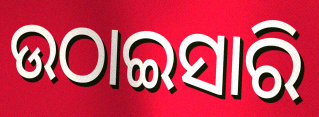
ଉଠାଇସାରି